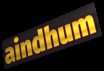
aindhum